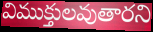
విముక్తులవుతారని